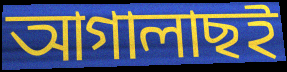
আগালাছই